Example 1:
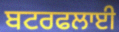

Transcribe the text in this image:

ਬਟਰਫਲਾਈ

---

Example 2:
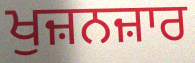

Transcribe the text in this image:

ਖੁਜ਼ਨਜ਼ਾਰ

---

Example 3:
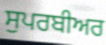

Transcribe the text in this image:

ਸੁਪਰਬੀਅਰ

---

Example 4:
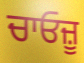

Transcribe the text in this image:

ਚਾਓਜ਼ੂ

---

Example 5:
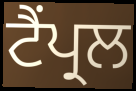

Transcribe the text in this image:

ਟੈਂਪ੍ਰਲ